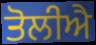
ਤੋਲੀਐ